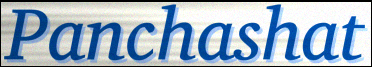
Panchashat